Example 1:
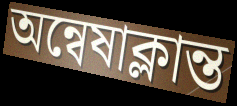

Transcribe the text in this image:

অন্বেষাক্লান্ত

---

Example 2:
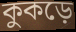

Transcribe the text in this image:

কুকড়ে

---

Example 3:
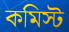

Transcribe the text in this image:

কমিস্ট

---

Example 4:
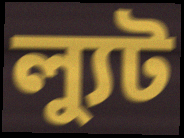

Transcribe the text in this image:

ল্যুট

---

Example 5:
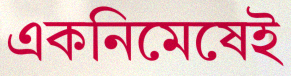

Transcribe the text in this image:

একনিমেষেই